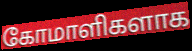
கோமாளிகளாக